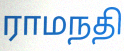
ராமநதி